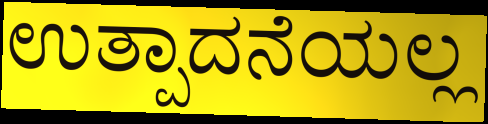
ಉತ್ಪಾದನೆಯಲ್ಲ